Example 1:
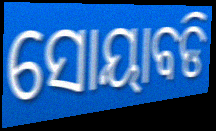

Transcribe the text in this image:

ସୋୟାବଡି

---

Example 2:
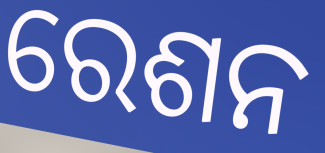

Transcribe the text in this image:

ରେଶନ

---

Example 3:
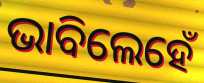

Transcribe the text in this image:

ଭାବିଲେହେଁ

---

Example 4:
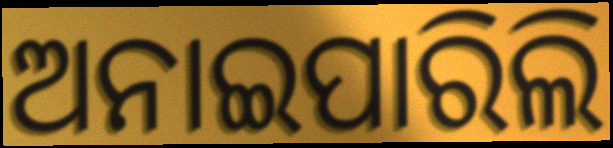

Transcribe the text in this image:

ଅନାଇପାରିଲି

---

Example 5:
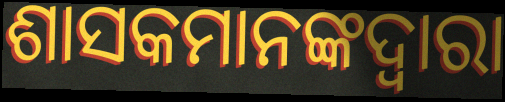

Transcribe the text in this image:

ଶାସକମାନଙ୍କଦ୍ୱାରା